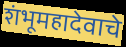
शंभूमहादेवाचे